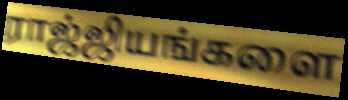
ராஜ்ஜியங்களை